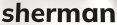
sherman